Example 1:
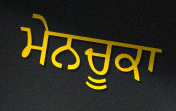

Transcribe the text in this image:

ਮੇਨਚੂਕਾ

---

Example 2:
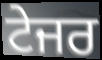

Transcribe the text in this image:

ਟੇਜਰ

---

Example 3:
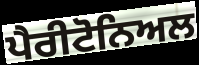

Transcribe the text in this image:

ਪੈਰੀਟੋਨਿਅਲ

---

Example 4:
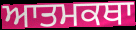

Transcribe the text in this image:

ਆਤਮਕਥਾ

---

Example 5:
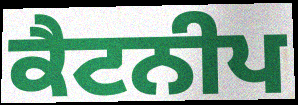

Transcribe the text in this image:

ਕੈਟਨੀਪ